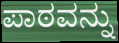
ಪಾಠವನ್ನು